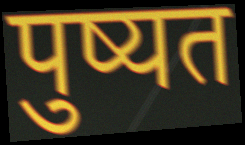
पुष्यत